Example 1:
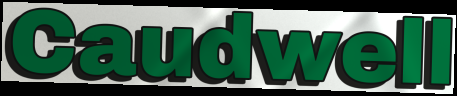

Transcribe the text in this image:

Caudwell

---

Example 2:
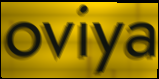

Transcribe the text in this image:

oviya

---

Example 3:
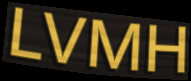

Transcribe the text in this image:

LVMH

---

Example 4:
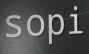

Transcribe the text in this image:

sopi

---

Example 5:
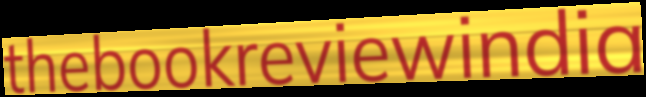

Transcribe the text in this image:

thebookreviewindia